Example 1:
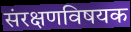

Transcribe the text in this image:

संरक्षणविषयक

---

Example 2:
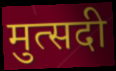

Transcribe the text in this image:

मुत्सदी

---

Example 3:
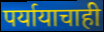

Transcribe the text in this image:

पर्यायाचाही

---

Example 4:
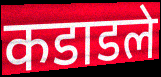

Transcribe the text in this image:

कडाडले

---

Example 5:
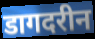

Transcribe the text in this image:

डागदरीन